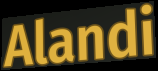
Alandi